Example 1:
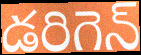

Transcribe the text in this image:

డరిగెన్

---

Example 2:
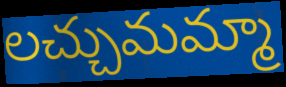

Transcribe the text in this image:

లచ్చుమమ్మా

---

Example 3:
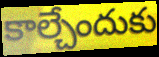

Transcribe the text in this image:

కాల్చేందుకు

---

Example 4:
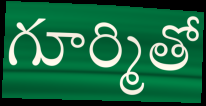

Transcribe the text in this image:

గూర్మితో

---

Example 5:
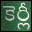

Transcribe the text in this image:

కెర్లీ